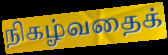
நிகழ்வதைக்